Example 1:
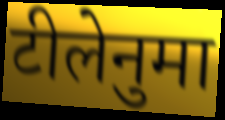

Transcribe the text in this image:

टीलेनुमा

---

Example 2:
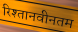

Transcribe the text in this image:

रिश्तानवीनतम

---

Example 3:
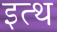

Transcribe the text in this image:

इत्थ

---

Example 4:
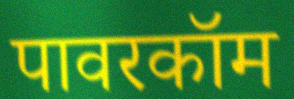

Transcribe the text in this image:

पावरकॉम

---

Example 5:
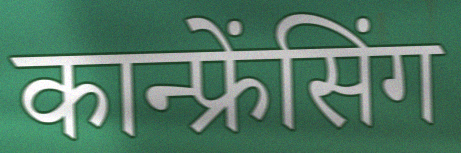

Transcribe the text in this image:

कान्फ्रेंसिंग